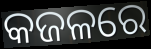
କଜଳରେ